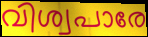
വിശ്വപാരേ